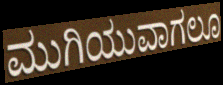
ಮುಗಿಯುವಾಗಲೂ